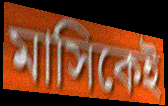
মাসিকেই